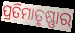
ପ୍ରତିମାତୃଷ୍ଣାର